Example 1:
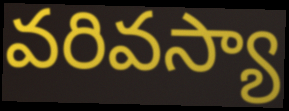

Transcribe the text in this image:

వరివస్యా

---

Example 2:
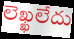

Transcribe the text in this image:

లెఖ్ఖలేదు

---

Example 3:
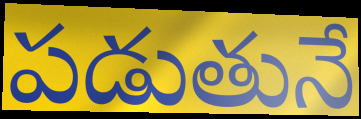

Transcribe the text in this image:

పడుతునే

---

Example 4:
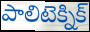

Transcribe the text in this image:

పాలిటెక్నిక్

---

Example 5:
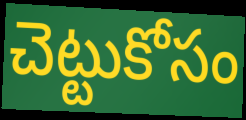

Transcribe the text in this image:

చెట్టుకోసం